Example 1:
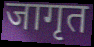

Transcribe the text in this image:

जागृत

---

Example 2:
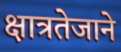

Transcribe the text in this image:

क्षात्रतेजाने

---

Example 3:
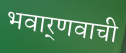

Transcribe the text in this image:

भवार्णवाची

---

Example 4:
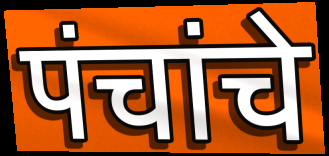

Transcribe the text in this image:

पंचांचे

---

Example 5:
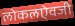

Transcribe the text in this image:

लोकलऐवजी